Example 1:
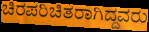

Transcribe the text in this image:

ಚಿರಪರಿಚಿತರಾಗಿದ್ದವರು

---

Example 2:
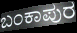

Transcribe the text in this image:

ಬಂಕಾಪುರ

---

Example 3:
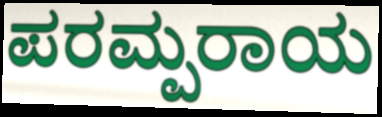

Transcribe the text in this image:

ಪರಮ್ಪರಾಯ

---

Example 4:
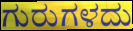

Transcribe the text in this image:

ಗುರುಗಳದು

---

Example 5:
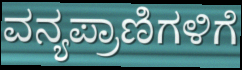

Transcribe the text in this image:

ವನ್ಯಪ್ರಾಣಿಗಳಿಗೆ